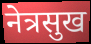
नेत्रसुख